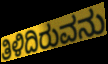
ತಿಳಿದಿರುವನು